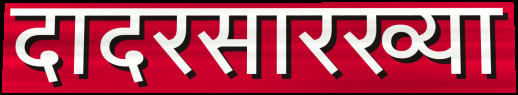
दादरसारख्या